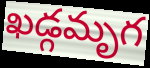
ఖడ్గమృగ